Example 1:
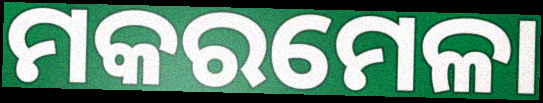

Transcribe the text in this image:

ମକରମେଳା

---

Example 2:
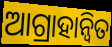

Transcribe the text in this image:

ଆଗ୍ରାହାନ୍ୱିତ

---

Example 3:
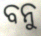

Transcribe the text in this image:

ବନୁ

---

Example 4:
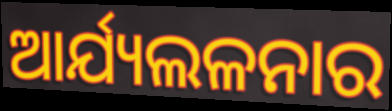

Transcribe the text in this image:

ଆର୍ଯ୍ୟଲଳନାର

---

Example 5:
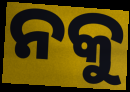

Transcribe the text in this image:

ନକୁ